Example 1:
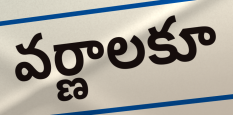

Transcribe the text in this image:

వర్ణాలకూ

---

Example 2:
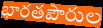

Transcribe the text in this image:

భారతపౌరుల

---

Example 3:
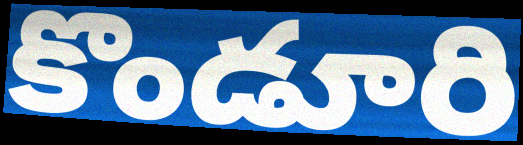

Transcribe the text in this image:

కొండూరి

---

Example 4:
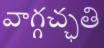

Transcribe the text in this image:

వాగ్గచ్ఛతి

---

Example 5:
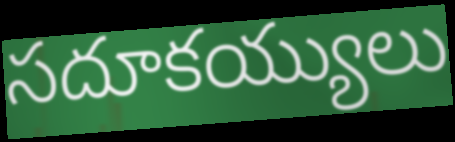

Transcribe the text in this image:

సదూకయ్యులు